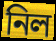
নিল